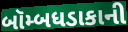
બૉમ્બધડાકાની